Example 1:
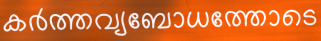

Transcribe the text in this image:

കർത്തവ്യബോധത്തോടെ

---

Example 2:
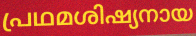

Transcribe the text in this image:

പ്രഥമശിഷ്യനായ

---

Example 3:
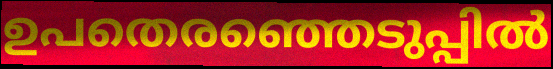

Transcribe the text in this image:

ഉപതെരഞ്ഞെടുപ്പിൽ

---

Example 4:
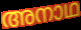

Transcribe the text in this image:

അനാഥ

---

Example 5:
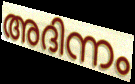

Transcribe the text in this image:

അദിന്നം